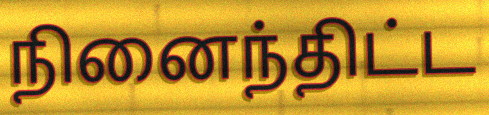
நினைந்திட்ட